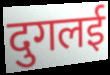
दुगलई